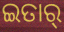
ଇତାର୍